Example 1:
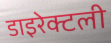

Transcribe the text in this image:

डाइरेक्टली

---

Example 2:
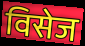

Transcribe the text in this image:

विसेज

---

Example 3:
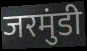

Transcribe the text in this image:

जरमुंडी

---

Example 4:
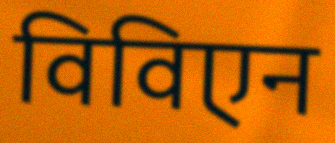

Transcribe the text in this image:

विविएन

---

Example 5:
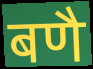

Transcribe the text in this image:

बणै